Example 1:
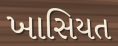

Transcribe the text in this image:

ખાસિયત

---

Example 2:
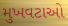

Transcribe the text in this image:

મુખવટાઓ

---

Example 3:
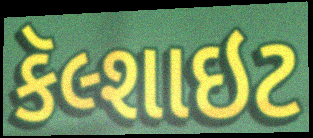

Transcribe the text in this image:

કૅલ્શાઇટ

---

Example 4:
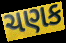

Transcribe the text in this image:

ચણક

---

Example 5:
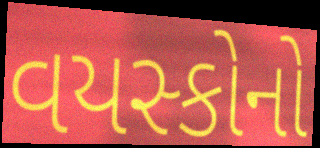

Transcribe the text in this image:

વયસ્કોનો